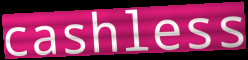
cashless